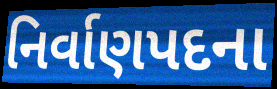
નિર્વાણપદના